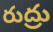
రుద్రు